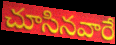
చూసినవారే